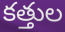
కత్తుల